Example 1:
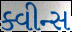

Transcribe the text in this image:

ક્વીન્સ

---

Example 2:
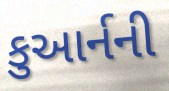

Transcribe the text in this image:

કુઆર્નની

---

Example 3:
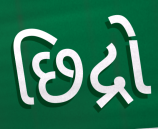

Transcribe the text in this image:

છિદ્રો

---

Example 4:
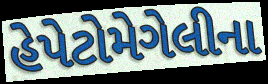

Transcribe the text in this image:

હેપેટોમેગેલીના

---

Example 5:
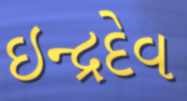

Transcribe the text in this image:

ઇન્દ્રદેવ